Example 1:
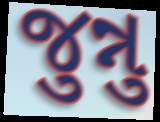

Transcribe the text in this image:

જુન્નુ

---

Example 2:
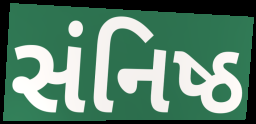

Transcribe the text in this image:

સંનિષ્ઠ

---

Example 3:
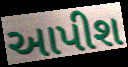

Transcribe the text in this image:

આપીશ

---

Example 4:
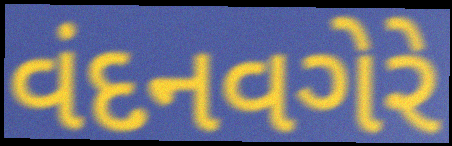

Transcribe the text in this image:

વંદનવગેરે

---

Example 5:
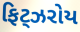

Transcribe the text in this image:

ફિટ્ઝરોય